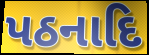
પઠનાદિ